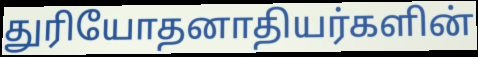
துரியோதனாதியர்களின்